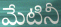
మేటినీ